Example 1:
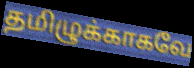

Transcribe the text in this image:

தமிழுக்காகவே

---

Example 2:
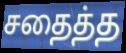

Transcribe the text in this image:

சதைத்த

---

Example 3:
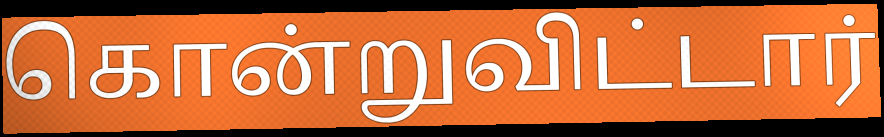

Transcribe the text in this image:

கொன்றுவிட்டார்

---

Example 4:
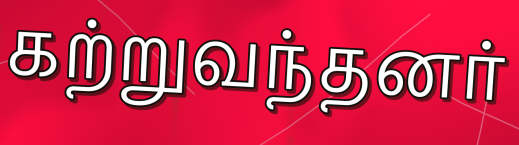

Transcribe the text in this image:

கற்றுவந்தனர்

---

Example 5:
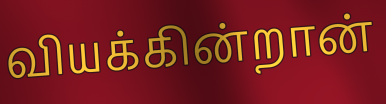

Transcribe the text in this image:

வியக்கின்றான்